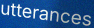
utterances